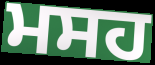
ਮਸਹ